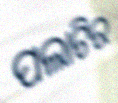
ପଲାଟିର